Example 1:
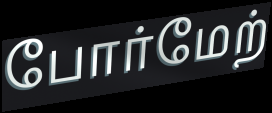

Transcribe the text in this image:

போர்மேற்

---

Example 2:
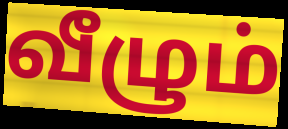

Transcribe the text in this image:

வீழும்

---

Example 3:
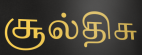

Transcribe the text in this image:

சூல்திசு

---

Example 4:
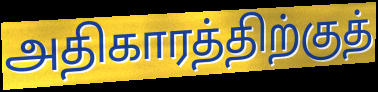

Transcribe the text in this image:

அதிகாரத்திற்குத்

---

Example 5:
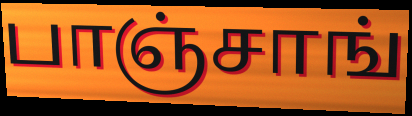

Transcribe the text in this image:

பாஞ்சாங்